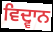
ਵਿਦ੍ਵਾਨ